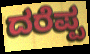
ದರೆಪ್ಪ